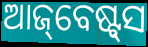
ଆଜ୍‌ବେଷ୍ଟ୍‌ସ